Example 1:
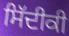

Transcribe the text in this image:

ਸਿੱਦੀਕੀ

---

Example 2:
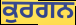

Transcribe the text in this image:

ਕੁਰਗਨ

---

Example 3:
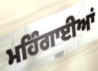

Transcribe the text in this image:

ਮਹਿੰਗਾਈਆਂ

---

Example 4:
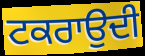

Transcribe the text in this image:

ਟਕਰਾਉਦੀ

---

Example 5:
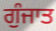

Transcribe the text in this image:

ਗੁੰਜਾਤ